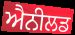
ਐਨੀਲਡ